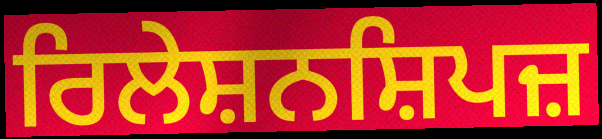
ਰਿਲੇਸ਼ਨਸ਼ਿਪਜ਼